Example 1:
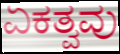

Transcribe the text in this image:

ಏಕತ್ವವು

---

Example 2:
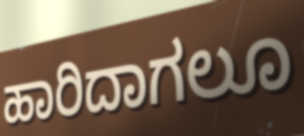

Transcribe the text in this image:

ಹಾರಿದಾಗಲೂ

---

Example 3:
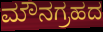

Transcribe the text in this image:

ಮೌನಗ್ರಹದ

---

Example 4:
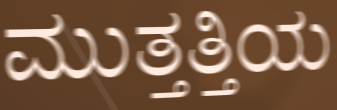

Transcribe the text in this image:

ಮುತ್ತತ್ತಿಯ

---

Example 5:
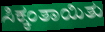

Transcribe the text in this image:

ಸಿಕ್ಕಂತಾಯಿತು